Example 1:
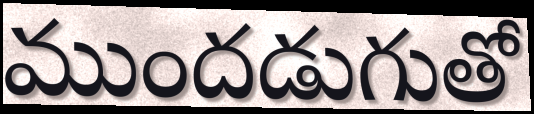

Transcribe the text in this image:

ముందడుగుతో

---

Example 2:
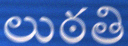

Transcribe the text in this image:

లుఠతి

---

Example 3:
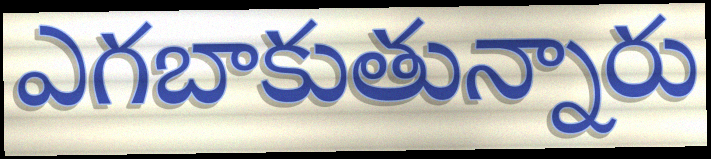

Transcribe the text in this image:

ఎగబాకుతున్నారు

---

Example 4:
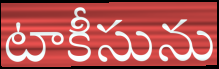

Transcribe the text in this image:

టాకీసును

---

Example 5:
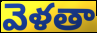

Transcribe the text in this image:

వెళతా